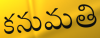
కనుమతి